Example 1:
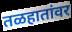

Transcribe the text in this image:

तळहातांवर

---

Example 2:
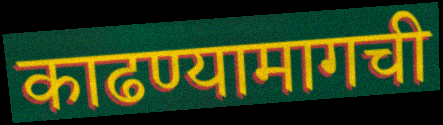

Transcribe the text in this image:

काढण्यामागची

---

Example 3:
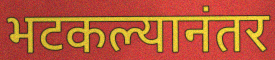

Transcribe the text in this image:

भटकल्यानंतर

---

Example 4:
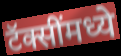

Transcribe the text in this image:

टॅक्सींमध्ये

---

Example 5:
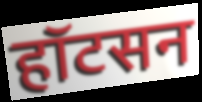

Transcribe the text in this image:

हॉटसन